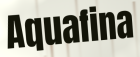
Aquafina